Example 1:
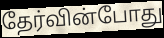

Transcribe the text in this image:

தேர்வின்போது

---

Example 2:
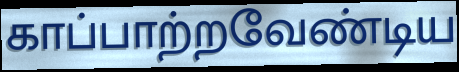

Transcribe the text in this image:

காப்பாற்றவேண்டிய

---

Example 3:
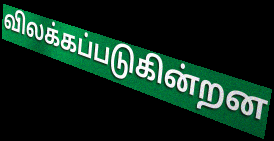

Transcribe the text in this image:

விலக்கப்படுகின்றன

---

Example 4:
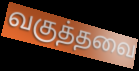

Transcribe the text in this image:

வகுத்தவை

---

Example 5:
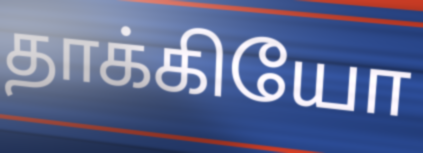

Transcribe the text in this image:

தாக்கியோ